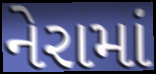
નેરામાં